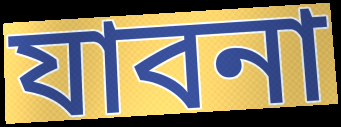
যাবনা